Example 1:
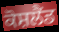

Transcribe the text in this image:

ਕੋਸ਼ਲੈਂਡ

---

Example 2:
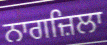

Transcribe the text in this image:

ਨਾਗਜ਼ਿਲਾ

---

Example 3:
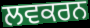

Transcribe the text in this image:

ਲਵਕਰਨ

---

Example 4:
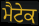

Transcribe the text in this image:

ਮੈਟੇਕ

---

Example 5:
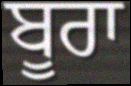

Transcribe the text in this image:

ਬੂਰਾ